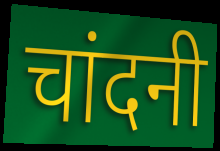
चांदनी